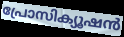
പ്രോസിക്യൂഷൻ